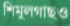
শিমুলগাছও